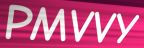
PMVVY